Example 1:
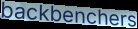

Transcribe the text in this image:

backbenchers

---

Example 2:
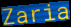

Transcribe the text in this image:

Zaria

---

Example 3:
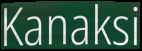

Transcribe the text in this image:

Kanaksi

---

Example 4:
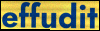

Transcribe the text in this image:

effudit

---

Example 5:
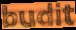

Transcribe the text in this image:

budit